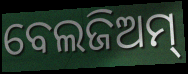
ବେଲଜିଅମ୍